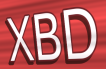
XBD